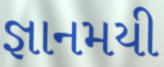
જ્ઞાનમયી